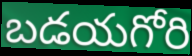
బడయగోరి